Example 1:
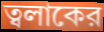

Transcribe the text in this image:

ত্বলাকের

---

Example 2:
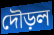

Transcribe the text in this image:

দৌড়ল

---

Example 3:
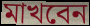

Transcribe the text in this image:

মাখবেন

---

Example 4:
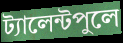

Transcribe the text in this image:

ট্যালেন্টপুলে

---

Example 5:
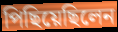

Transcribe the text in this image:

পিছিয়েছিলেন